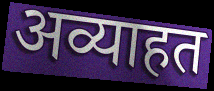
अव्याहत